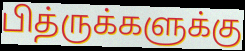
பித்ருக்களுக்கு